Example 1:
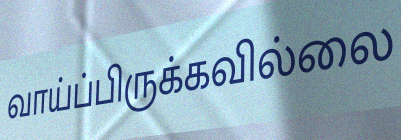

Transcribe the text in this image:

வாய்ப்பிருக்கவில்லை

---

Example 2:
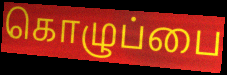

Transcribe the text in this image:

கொழுப்பை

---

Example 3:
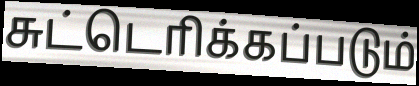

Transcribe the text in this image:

சுட்டெரிக்கப்படும்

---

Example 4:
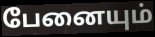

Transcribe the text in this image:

பேனையும்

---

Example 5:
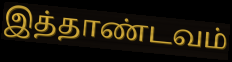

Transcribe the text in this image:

இத்தாண்டவம்